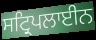
ਸਟ੍ਰਿਪਲਾਈਨ